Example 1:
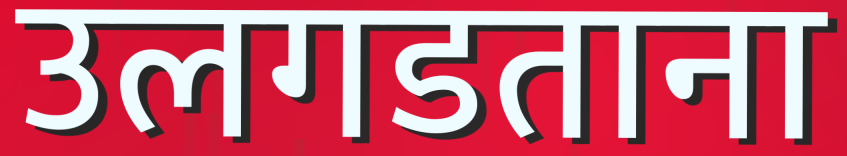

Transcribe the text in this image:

उलगडताना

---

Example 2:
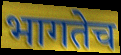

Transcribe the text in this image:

भागतेच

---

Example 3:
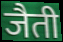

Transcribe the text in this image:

जैती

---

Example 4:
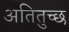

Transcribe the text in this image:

अतितुच्छ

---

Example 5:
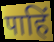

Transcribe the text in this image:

पाहिं